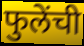
फुलेंची